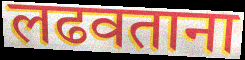
लढवताना